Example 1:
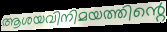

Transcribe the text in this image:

ആശയവിനിമയത്തിന്റെ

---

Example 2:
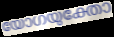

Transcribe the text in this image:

യോഗയുക്തോ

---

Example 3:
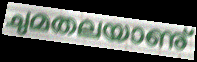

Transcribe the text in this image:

ചുമതലയാണു്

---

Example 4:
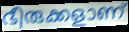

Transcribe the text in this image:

ഭീരുക്കളാണ്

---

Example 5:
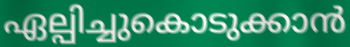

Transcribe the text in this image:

ഏല്പിച്ചുകൊടുക്കാൻ